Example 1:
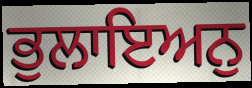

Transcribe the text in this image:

ਭੁਲਾਇਅਨੁ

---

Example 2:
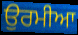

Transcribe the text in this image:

ਉਰਮੀਆ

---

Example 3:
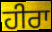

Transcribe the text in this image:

ਹੀਰਾ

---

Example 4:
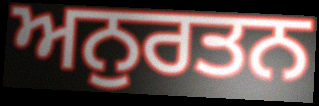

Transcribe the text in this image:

ਅਨੁਰਤਨ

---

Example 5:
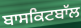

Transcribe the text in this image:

ਬਾਸਕਿਟਬਾੱਲ